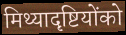
मिथ्यादृष्टियोंको